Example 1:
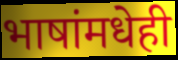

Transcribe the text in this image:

भाषांमधेही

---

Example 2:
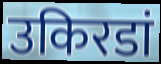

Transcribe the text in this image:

उकिरडां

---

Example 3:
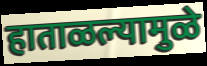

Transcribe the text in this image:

हाताळल्यामुळे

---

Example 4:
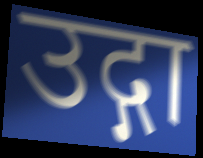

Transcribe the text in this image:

उद्गा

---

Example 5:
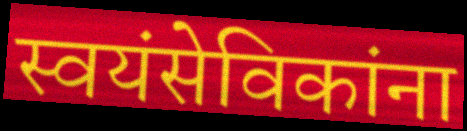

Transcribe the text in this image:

स्वयंसेविकांना